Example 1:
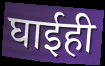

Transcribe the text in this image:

घाईही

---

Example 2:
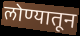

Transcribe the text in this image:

लोण्यातून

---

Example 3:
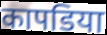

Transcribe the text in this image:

कापडिया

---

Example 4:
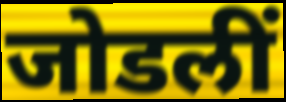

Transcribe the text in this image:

जोडलीं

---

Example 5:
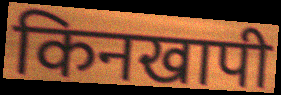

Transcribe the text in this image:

किनखापी